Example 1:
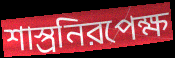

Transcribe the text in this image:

শাস্ত্রনিরপেক্ষ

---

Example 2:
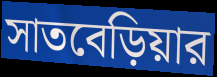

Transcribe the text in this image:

সাতবেড়িয়ার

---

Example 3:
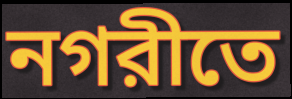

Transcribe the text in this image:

নগরীতে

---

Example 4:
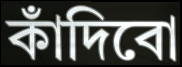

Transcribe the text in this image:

কাঁদিবো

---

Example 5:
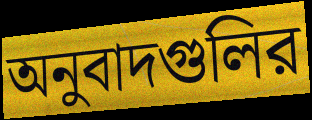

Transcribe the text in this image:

অনুবাদগুলির